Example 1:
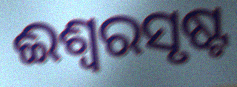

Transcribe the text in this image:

ଈଶ୍ୱରସୃଷ୍ଟ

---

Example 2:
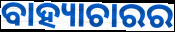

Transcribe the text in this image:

ବାହ୍ୟାଚାରର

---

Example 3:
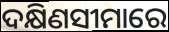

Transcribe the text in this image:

ଦକ୍ଷିଣସୀମାରେ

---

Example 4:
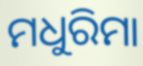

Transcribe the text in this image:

ମଧୁରିମା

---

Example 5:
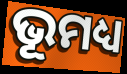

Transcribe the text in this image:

ଭୂମଧ୍ୟ